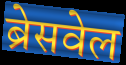
ब्रेसवेल